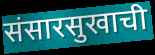
संसारसुखाची